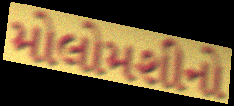
મોલોમશીનો